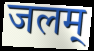
जलम्